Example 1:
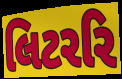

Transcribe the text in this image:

લિટરરિ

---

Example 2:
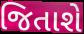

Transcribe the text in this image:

જિતાશે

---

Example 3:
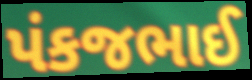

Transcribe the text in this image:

પંકજભાઈ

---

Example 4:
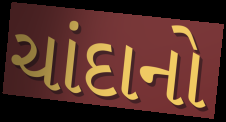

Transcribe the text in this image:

ચાંદાનો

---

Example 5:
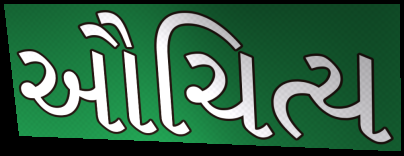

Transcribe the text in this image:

ઔચિત્ય